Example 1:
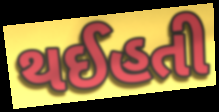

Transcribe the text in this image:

થઈહતી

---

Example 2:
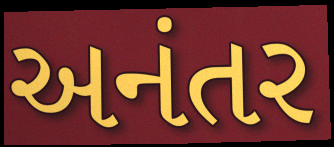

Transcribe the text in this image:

અનંતર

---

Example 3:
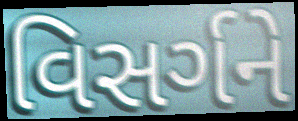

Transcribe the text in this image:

વિસર્ગને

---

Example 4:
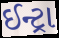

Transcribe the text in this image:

ઈન્ટ્રા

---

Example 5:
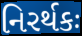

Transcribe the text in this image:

નિરર્થકઃ